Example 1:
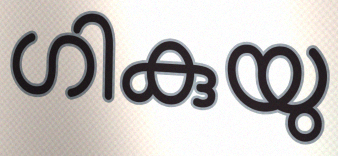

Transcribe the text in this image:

ഗികുയു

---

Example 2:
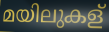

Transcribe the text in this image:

മയിലുകള്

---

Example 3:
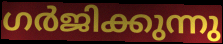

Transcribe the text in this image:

ഗർജിക്കുന്നു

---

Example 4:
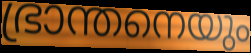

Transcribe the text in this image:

ഭ്രാന്തനെയും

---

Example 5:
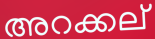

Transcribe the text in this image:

അറക്കല്